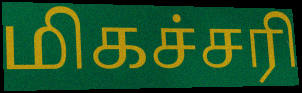
மிகச்சரி